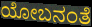
ಯೋಬನಂತೆ